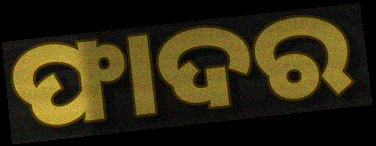
ଫାଦର